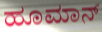
ಹೂಮಾನ್